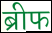
ब्रीफ